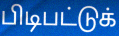
பிடிபட்டுக்